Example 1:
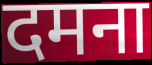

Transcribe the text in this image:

दमना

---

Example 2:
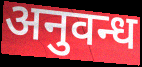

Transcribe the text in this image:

अनुवन्ध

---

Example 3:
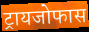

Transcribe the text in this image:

ट्रायजोफास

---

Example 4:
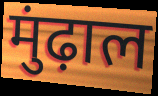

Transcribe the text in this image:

मुंढ़ाल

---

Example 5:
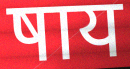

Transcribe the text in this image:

षाय